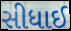
સીધાઈ